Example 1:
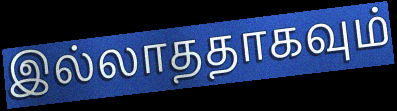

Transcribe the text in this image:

இல்லாததாகவும்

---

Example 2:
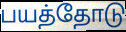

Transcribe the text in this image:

பயத்தோடு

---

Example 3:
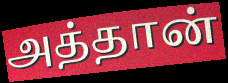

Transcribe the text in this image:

அத்தான்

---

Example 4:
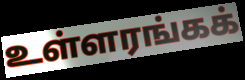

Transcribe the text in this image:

உள்ளரங்கக்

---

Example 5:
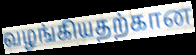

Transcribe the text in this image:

வழங்கியதற்கான